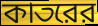
কাতরের